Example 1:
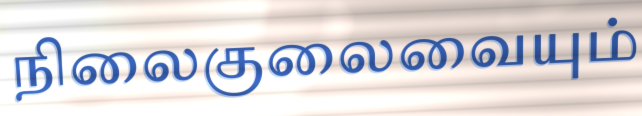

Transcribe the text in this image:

நிலைகுலைவையும்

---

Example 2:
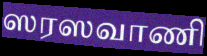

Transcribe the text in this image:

ஸரஸவாணி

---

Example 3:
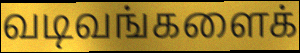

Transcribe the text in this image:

வடிவங்களைக்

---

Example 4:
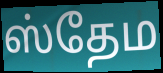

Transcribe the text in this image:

ஸ்தேம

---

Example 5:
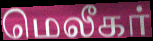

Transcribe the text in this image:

மெலீகர்